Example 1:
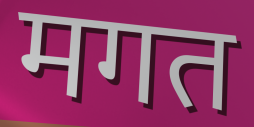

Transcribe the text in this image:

मगत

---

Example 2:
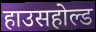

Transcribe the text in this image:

हाउसहोल्ड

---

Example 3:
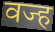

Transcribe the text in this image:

वज्ह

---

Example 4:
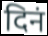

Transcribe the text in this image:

दिनं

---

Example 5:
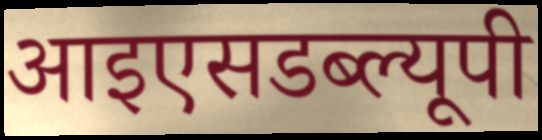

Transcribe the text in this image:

आइएसडब्ल्यूपी